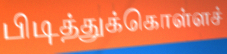
பிடித்துக்கொள்ளச்